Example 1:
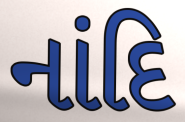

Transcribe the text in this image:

નાંદિ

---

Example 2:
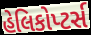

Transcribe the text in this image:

હેલિકોપ્ટર્સ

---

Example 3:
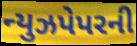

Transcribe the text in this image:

ન્યુઝપેપરની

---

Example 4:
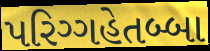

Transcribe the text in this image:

પરિગ્ગહેતબ્બા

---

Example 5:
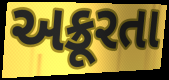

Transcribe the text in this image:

અક્રૂરતા